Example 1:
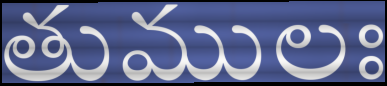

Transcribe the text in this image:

తుములః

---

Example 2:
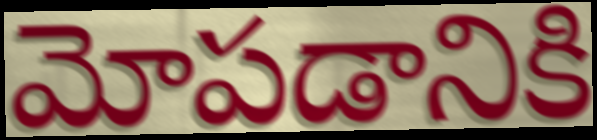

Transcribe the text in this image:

మోపడానికి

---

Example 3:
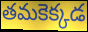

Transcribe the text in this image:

తమకెక్కడ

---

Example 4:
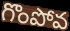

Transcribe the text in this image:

గొంపోవ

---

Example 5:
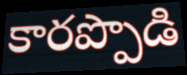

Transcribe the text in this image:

కారప్పొడి